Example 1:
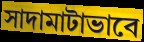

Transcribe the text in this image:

সাদামাটাভাবে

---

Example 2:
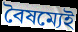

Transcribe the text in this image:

বৈষম্যেই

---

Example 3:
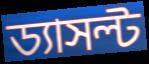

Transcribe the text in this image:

ড্যাসল্ট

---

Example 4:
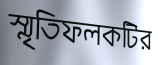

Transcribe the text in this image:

স্মৃতিফলকটির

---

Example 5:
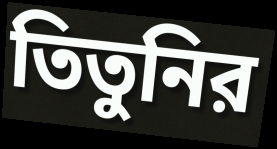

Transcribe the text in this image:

তিতুনির